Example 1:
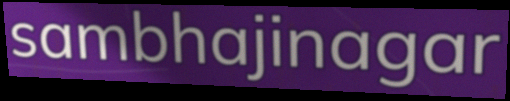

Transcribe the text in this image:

sambhajinagar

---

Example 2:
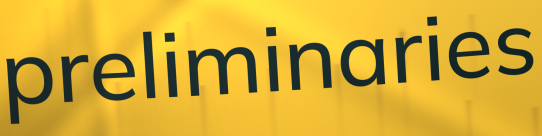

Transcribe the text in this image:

preliminaries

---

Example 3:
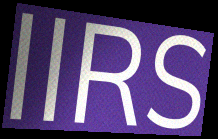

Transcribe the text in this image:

IIRS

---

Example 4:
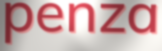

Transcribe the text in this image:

penza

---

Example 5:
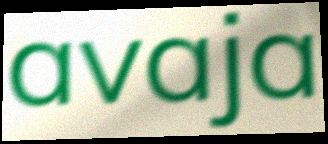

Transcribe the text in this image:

avaja